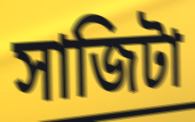
সাজিটা